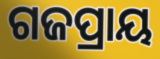
ଗଜପ୍ରାୟ